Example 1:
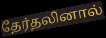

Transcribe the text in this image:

தேர்தலினால்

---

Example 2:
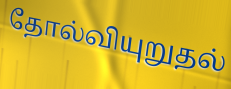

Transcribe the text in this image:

தோல்வியுறுதல்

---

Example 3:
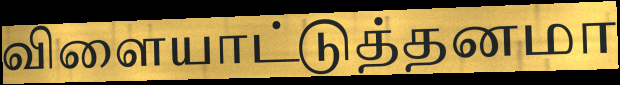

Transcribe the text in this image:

விளையாட்டுத்தனமா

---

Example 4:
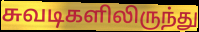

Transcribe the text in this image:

சுவடிகளிலிருந்து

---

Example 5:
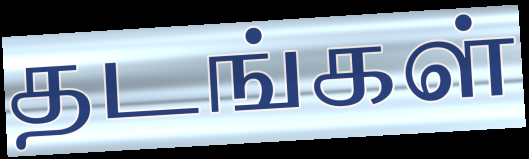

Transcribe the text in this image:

தடங்கள்